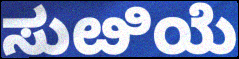
ಸುೞಿಯೆ